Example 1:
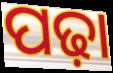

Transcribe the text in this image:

ପଢ଼ା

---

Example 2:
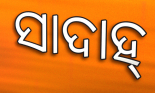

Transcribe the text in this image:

ସାଦାହ୍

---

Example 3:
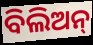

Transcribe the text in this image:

ବିଲିଅନ୍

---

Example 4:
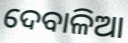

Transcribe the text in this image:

ଦେବାଳିଆ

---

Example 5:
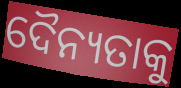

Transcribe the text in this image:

ଦୈନ୍ୟତାକୁ